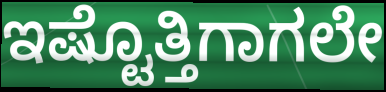
ಇಷ್ಟೊತ್ತಿಗಾಗಲೇ